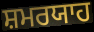
ਸ਼ਮਰਯਾਹ